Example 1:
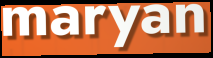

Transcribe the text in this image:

maryan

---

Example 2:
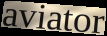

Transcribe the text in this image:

aviator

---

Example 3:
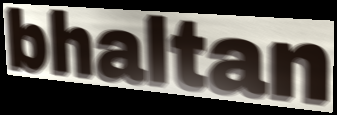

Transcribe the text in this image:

bhaltan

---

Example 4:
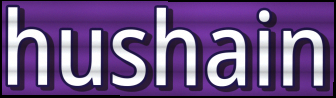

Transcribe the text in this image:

hushain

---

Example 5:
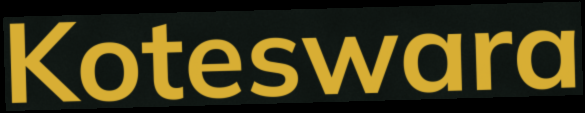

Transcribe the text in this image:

Koteswara